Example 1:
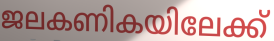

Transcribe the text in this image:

ജലകണികയിലേക്ക്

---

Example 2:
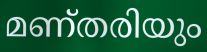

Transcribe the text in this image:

മണ്തരിയും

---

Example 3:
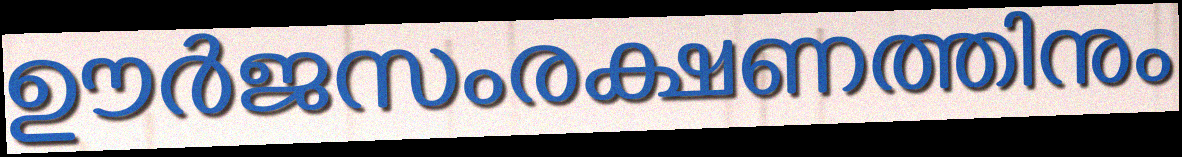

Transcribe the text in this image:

ഊർജസംരക്ഷണത്തിനും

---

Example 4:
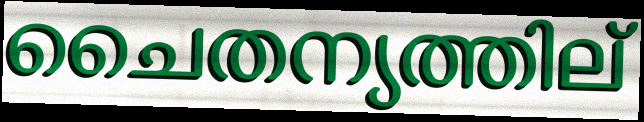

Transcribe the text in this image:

ചൈതന്യത്തില്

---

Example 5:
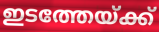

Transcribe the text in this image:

ഇടത്തേയ്ക്ക്